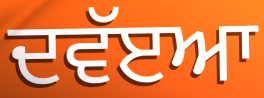
ਦਵੱੲਆ